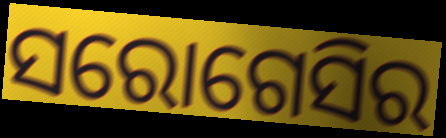
ସରୋଗେସିର